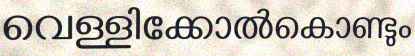
വെള്ളിക്കോൽകൊണ്ടും